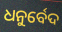
ଧନୁର୍ବେଦ